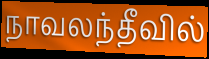
நாவலந்தீவில்